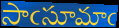
సాఁసూమాఁ